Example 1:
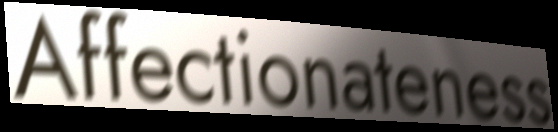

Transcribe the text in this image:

Affectionateness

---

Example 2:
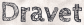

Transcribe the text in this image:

Dravet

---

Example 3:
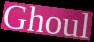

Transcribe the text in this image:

Ghoul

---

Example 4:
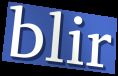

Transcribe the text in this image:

blir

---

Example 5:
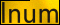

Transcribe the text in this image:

Inum